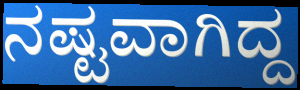
ನಷ್ಟವಾಗಿದ್ದ